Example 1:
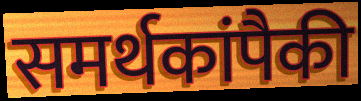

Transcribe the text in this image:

समर्थकांपैकी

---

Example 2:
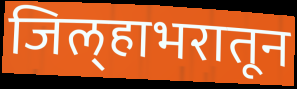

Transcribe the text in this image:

जिल्हाभरातून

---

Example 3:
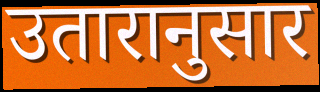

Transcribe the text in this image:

उतारानुसार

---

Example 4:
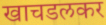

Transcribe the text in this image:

खाचडलकर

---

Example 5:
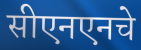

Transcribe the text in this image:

सीएनएनचे